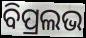
ବିପ୍ରଲଭ